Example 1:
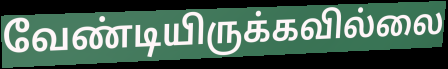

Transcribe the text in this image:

வேண்டியிருக்கவில்லை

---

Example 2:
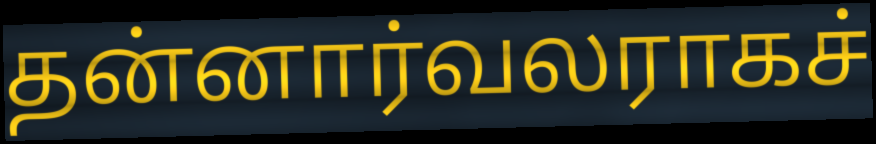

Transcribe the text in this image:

தன்னார்வலராகச்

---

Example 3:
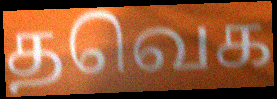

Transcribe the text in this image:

தவெக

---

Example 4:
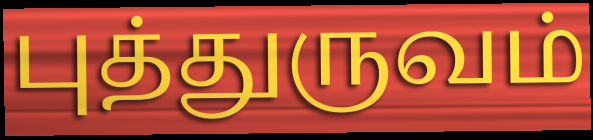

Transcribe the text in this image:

புத்துருவம்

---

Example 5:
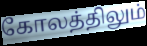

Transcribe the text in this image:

கோலத்திலும்